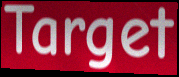
Target